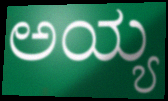
ಅಯ್ಯ